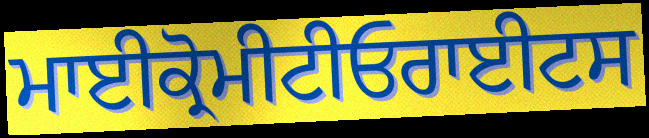
ਮਾਈਕ੍ਰੋਮੀਟੀਓਰਾਈਟਸ